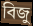
বিজু